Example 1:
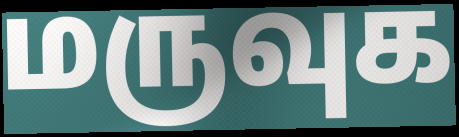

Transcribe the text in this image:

மருவுக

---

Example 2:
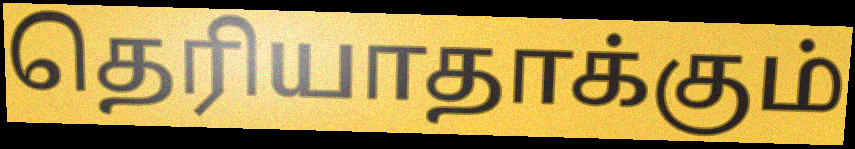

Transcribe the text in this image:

தெரியாதாக்கும்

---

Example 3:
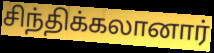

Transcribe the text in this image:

சிந்திக்கலானார்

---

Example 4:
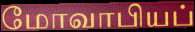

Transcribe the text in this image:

மோவாபியப்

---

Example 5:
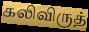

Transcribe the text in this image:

கலிவிருத்